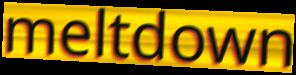
meltdown